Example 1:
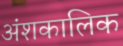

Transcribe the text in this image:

अंशकालिक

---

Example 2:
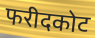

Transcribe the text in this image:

फरीदकोट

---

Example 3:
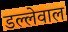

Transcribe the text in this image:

डल्लेवाल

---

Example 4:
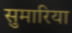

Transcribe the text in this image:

सुमारिया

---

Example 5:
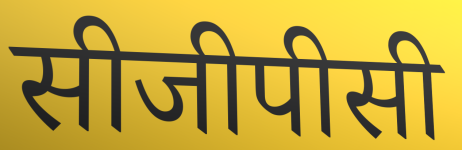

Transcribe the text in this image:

सीजीपीसी